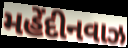
મહેંદીનવાઝ